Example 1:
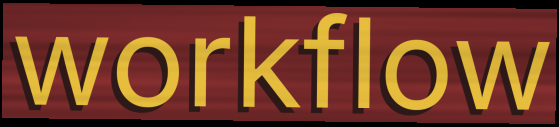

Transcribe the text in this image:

workflow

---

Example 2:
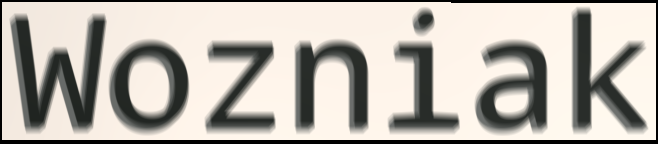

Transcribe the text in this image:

Wozniak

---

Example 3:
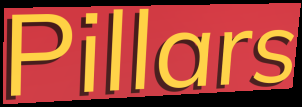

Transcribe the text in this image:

Pillars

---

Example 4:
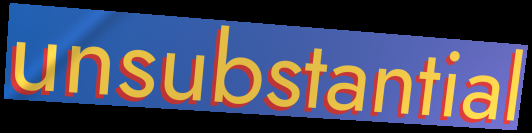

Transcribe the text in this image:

unsubstantial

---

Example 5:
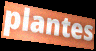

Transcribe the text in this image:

plantes